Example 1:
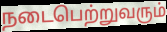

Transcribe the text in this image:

நடைபெற்றுவரும்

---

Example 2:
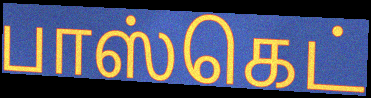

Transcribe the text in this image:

பாஸ்கெட்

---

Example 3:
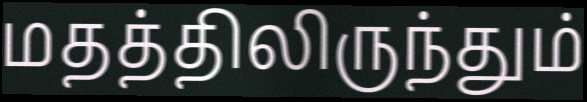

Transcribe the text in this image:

மதத்திலிருந்தும்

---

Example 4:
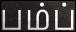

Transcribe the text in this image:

பம்ப்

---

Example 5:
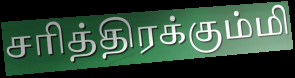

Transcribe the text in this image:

சரித்திரக்கும்மி